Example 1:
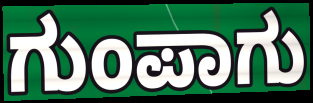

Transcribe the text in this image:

ಗುಂಪಾಗು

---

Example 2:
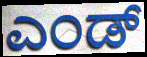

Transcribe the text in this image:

ಎಂಡ್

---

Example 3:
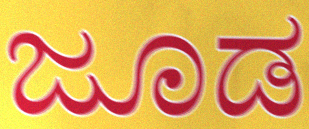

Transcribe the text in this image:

ಜೂಡ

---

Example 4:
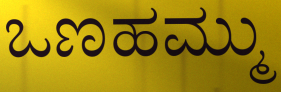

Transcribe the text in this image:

ಒಣಹಮ್ಮು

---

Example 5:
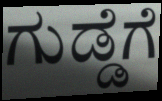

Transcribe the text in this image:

ಗುಡ್ಡೆಗೆ